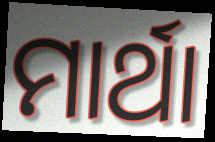
ମାର୍ଥା